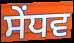
ਸੇਂਧਵ